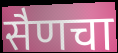
सैणचा